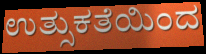
ಉತ್ಸುಕತೆಯಿಂದ